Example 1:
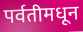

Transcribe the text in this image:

पर्वतीमधून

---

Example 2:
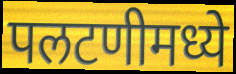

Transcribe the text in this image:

पलटणीमध्ये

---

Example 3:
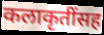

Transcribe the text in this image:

कलाकृतींसह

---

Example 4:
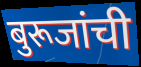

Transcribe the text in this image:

बुरूजांची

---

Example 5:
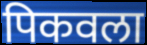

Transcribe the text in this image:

पिकवला